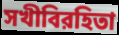
সখীবিরহিতা